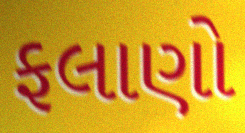
ફલાણો